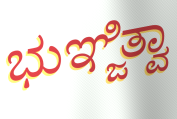
ಭುಞ್ಜಿತ್ವಾ